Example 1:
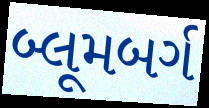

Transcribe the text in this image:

બ્લૂમબર્ગ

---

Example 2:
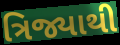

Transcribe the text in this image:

ત્રિજ્યાથી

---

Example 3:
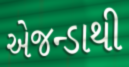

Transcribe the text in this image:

એજન્ડાથી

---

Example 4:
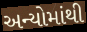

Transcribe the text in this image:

અન્યોમાંથી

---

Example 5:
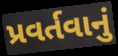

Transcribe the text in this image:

પ્રવર્તવાનું